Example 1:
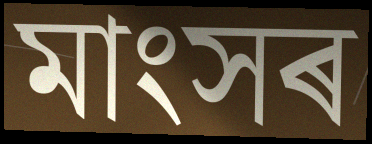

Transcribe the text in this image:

মাংসৰ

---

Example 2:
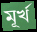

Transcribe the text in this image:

মূৰ্খ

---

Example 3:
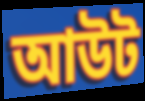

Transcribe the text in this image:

আউট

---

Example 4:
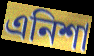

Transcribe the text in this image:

এনিশা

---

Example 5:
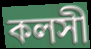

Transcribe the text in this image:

কলসী